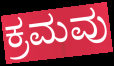
ಕ್ರಮವು